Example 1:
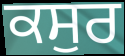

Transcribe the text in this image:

ਕਸੁਰ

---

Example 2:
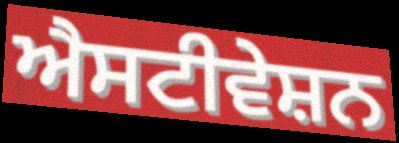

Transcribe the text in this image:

ਐਸਟੀਵੇਸ਼ਨ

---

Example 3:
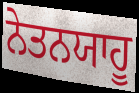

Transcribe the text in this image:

ਨੇਤਨਯਾਹੂ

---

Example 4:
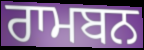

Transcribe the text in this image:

ਰਾਮਬਨ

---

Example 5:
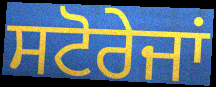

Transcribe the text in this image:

ਸਟੋਰੇਜਾਂ